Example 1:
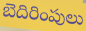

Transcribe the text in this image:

బెదిరింపులు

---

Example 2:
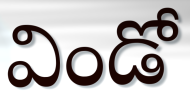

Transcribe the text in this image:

విండో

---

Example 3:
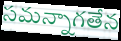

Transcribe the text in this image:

సమన్నాగతేన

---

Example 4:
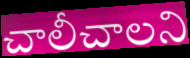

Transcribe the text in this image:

చాలీచాలని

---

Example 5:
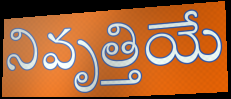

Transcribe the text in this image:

నివృత్తియే